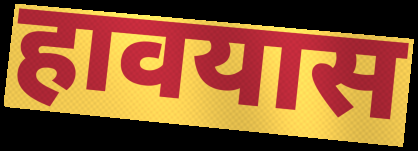
हावयास